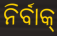
ନିର୍ବାକ୍